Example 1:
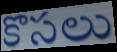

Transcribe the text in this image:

కొసలు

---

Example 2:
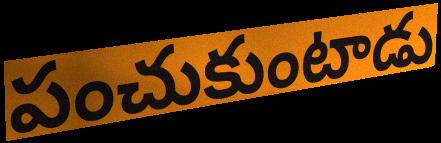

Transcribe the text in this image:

పంచుకుంటాడు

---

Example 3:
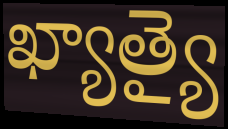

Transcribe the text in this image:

ఖ్యాత్యై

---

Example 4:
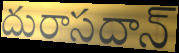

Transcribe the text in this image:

దురాసదాన్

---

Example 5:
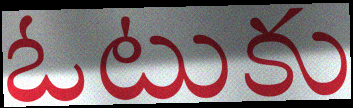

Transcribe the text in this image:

ఓటుకు